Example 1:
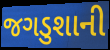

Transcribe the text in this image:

જગડુશાની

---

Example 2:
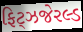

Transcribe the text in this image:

ફિટ્ઝજેરલ્ડ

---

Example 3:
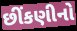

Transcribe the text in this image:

છીંકણીનો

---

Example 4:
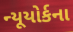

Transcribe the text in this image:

ન્યૂયોર્કના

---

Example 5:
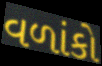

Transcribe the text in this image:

વળાંકો